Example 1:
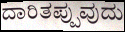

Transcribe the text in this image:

ದಾರಿತಪ್ಪುವುದು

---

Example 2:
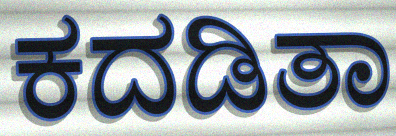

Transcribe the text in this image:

ಕದಡಿತಾ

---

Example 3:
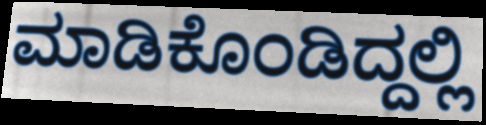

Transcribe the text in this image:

ಮಾಡಿಕೊಂಡಿದ್ದಲ್ಲಿ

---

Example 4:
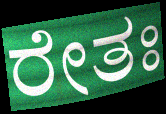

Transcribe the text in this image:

ರೇತಃ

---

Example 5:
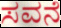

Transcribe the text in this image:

ಸವನೆ